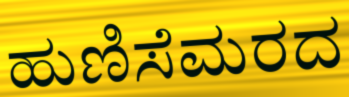
ಹುಣಿಸೆಮರದ